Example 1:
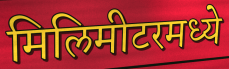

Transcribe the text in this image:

मिलिमीटरमध्ये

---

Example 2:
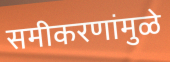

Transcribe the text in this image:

समीकरणांमुळे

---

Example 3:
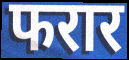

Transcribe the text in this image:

फरार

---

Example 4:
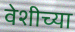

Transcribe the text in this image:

वेशीच्या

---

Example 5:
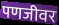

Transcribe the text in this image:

पणजीवर